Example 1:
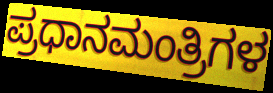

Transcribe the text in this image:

ಪ್ರಧಾನಮಂತ್ರಿಗಳ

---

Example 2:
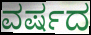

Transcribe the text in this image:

ವರ್ಷದ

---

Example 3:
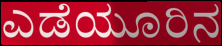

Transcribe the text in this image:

ಎಡೆಯೂರಿನ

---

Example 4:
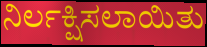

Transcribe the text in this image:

ನಿರ್ಲಕ್ಷಿಸಲಾಯಿತು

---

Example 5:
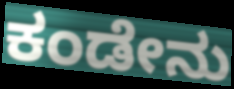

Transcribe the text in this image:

ಕಂಡೇನು